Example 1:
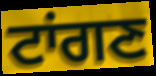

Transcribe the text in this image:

ਟਾਂਗਣ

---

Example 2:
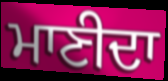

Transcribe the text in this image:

ਮਾਣੀਦਾ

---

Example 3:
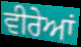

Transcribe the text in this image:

ਵੀਰੇਆਂ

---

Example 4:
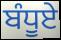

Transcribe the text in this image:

ਬੰਧੂਏ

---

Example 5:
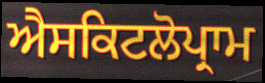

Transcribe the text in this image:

ਐਸਕਿਟਲੋਪ੍ਰਾਮ